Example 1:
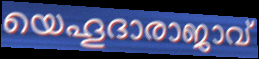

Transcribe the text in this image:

യെഹൂദാരാജാവ്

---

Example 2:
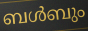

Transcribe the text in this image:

ബൾബും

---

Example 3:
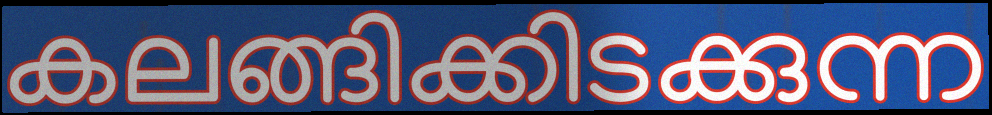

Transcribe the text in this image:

കലങ്ങിക്കിടക്കുന്ന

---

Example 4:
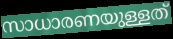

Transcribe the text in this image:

സാധാരണയുള്ളത്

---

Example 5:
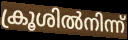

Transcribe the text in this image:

ക്രൂശിൽനിന്ന്